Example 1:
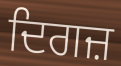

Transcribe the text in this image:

ਦਿਗਜ਼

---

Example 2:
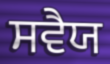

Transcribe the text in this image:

ਸਵੈਯ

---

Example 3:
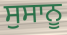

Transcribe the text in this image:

ਸੁਸਾਨੂ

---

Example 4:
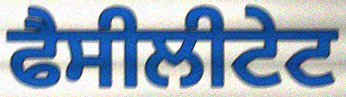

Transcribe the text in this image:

ਫੈਸੀਲੀਟੇਟ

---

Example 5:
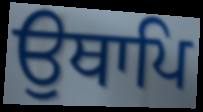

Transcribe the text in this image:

ਉਥਾਪਿ